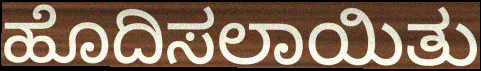
ಹೊದಿಸಲಾಯಿತು